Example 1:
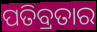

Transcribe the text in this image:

ପତିବ୍ରତାର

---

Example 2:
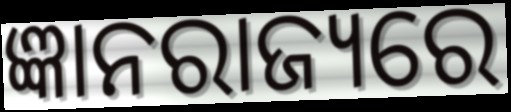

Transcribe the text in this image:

ଜ୍ଞାନରାଜ୍ୟରେ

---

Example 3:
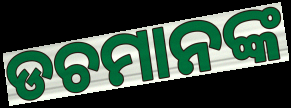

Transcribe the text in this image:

ଡଚମାନଙ୍କ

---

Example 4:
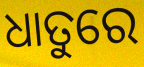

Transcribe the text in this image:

ଧାତୁରେ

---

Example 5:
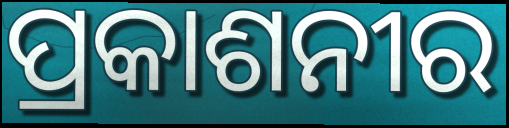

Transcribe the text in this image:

ପ୍ରକାଶନୀର